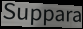
Suppara